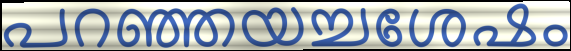
പറഞ്ഞയച്ചശേഷം